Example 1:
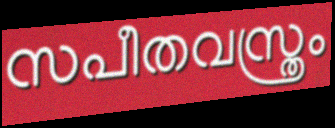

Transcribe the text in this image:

സപീതവസ്ത്രം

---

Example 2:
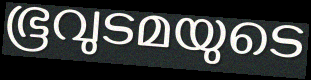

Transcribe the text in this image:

ഭൂവുടമയുടെ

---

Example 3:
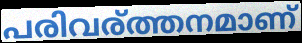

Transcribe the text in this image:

പരിവര്ത്തനമാണ്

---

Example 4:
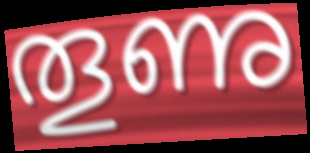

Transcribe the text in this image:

തൂണു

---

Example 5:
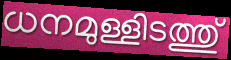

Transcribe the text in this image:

ധനമുള്ളിടത്തു്